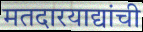
मतदारयाद्यांची